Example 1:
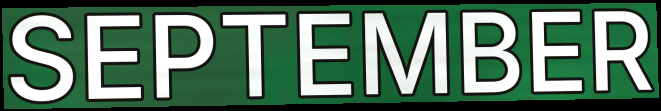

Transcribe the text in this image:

SEPTEMBER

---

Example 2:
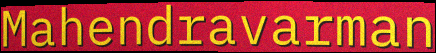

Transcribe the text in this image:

Mahendravarman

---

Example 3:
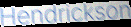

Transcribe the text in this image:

Hendrickson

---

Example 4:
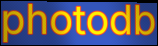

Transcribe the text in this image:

photodb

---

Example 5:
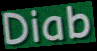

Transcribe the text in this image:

Diab